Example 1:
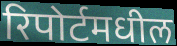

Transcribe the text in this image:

रिपोर्टमधील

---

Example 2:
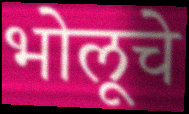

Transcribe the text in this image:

भोलूचे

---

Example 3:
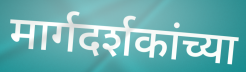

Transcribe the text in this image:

मार्गदर्शकांच्या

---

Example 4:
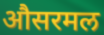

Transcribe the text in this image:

औसरमल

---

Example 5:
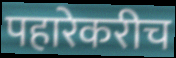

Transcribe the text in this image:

पहारेकरीच